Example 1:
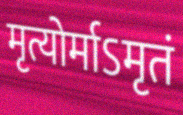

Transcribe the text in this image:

मृत्योर्माऽमृतं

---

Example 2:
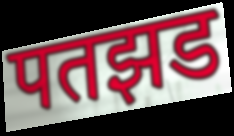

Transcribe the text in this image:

पतझड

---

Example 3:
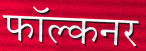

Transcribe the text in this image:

फॉल्कनर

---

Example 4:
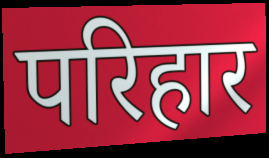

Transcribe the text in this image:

परिहार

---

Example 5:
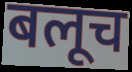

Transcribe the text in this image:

बलूच